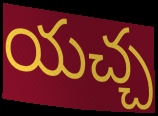
యచ్చ